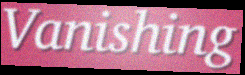
Vanishing